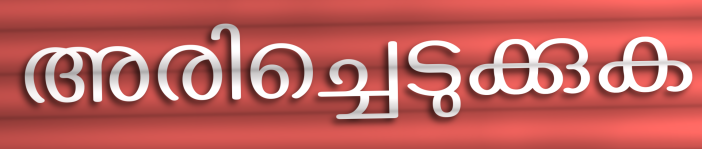
അരിച്ചെടുക്കുക